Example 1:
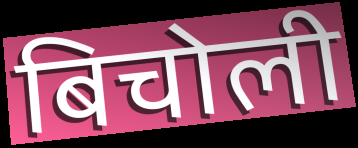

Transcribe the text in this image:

बिचोली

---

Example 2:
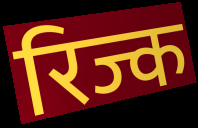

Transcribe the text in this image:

रिज्क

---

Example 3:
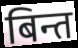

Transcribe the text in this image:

बिन्त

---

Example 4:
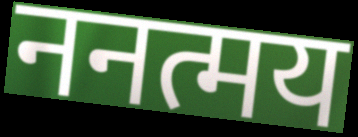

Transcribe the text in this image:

ननत्मय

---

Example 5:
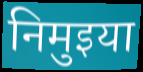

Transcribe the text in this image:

निमुइया